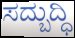
ಸದ್ಬುದ್ಧಿ